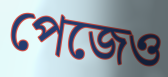
পেজেও